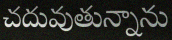
చదువుతున్నాను